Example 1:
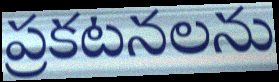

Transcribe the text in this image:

ప్రకటనలను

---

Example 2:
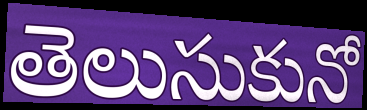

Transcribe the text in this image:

తెలుసుకునో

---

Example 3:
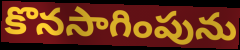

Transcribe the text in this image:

కొనసాగింపును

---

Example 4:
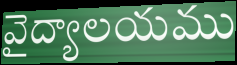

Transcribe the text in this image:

వైద్యాలయము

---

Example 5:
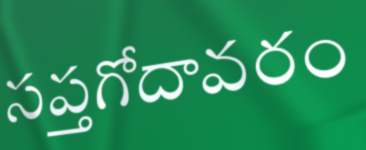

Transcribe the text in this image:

సప్తగోదావరం